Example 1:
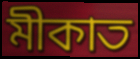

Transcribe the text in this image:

মীকাত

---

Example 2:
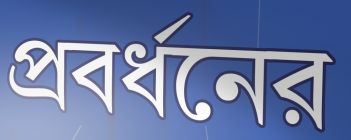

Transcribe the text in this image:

প্রবর্ধনের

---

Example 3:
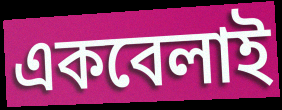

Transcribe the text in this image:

একবেলাই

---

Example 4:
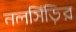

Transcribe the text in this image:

নলসিঁড়ির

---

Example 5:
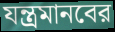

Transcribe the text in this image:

যন্ত্রমানবের